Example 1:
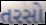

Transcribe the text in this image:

તરસો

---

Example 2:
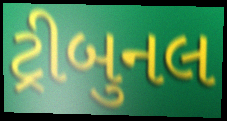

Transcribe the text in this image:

ટ્રીબુનલ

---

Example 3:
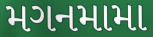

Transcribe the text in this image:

મગનમામા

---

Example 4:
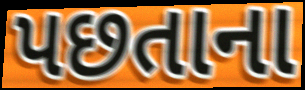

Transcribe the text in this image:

પછતાના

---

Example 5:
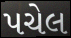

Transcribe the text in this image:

પચેલ